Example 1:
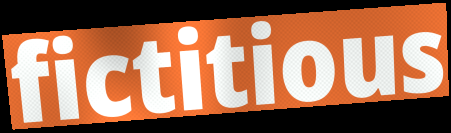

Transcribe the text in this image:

fictitious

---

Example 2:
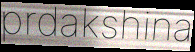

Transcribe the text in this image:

prdakshina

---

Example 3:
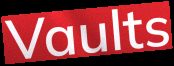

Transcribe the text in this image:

Vaults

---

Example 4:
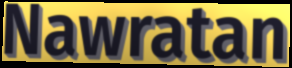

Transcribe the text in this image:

Nawratan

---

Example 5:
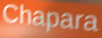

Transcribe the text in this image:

Chapara